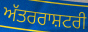
ਅੱਤਰਰਾਸ਼ਟਰੀ